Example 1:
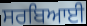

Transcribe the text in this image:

ਸਰਬਿਆਈ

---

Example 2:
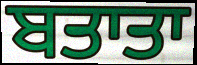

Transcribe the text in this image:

ਬਤਾਤਾ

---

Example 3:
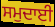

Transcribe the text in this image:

ਸਮੁਦਾਈ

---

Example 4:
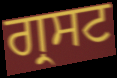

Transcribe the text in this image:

ਗ੍ਰਸਟ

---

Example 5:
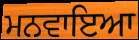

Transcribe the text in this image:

ਮਨਵਾਇਆ